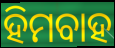
ହିମବାହ